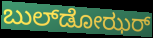
ಬುಲ್‌ಡೋಝರ್